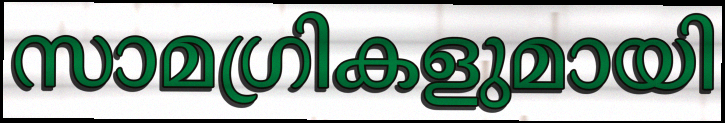
സാമഗ്രികളുമായി